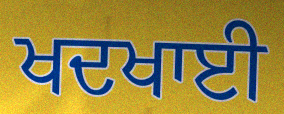
ਖਦਖਾਈ